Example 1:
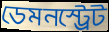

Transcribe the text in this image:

ডেমনস্ট্রেট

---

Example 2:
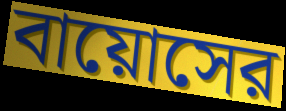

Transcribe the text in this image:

বায়োসের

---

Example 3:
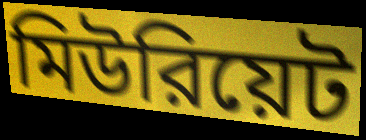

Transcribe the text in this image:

মিউরিয়েট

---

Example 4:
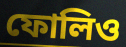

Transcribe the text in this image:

ফোলিও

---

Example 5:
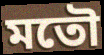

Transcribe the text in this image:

মতৌ